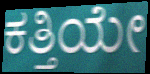
ಕತ್ತಿಯೇ